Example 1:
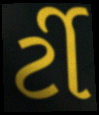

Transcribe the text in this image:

ર્ટી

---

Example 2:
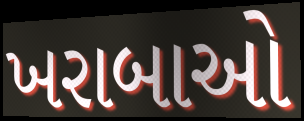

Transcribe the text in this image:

ખરાબાઓ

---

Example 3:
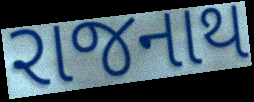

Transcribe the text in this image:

રાજનાથ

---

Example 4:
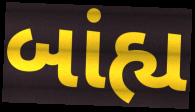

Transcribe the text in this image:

બાંહ્ય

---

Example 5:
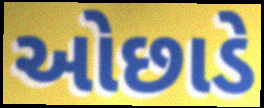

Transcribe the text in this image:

ઓછાડે